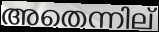
അതെന്നില്